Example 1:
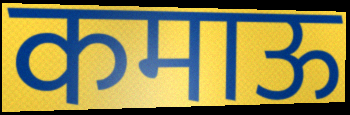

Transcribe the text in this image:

कमाऊ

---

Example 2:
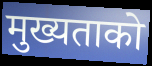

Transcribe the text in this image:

मुख्यताको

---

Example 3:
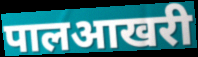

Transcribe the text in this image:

पालआखरी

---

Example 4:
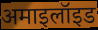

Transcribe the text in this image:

अमाइलॉइड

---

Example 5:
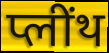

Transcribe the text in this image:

प्लींथ